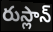
రుస్లాన్